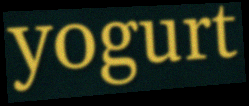
yogurt